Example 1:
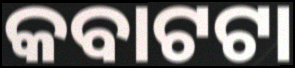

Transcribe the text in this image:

କବାଟଟା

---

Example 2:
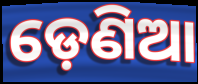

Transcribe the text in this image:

ଡ଼େଣିଆ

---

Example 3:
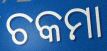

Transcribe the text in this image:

ଚକମା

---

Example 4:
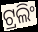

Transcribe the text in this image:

ଟ୍ରଲିଂ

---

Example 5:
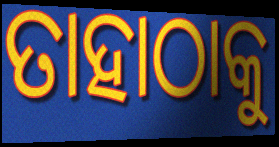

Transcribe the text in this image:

ତାହାଠାକୁ